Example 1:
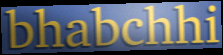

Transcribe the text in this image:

bhabchhi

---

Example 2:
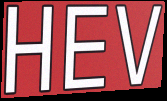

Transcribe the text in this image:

HEV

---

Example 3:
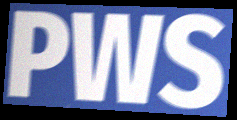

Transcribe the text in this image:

PWS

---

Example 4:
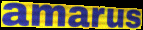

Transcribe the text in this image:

amarus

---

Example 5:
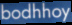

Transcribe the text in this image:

bodhhoy